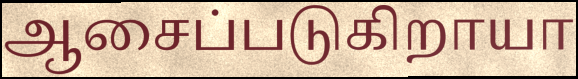
ஆசைப்படுகிறாயா